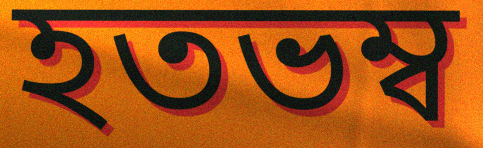
হতভম্ব